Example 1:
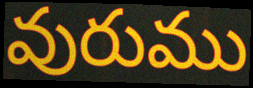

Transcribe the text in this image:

వురుము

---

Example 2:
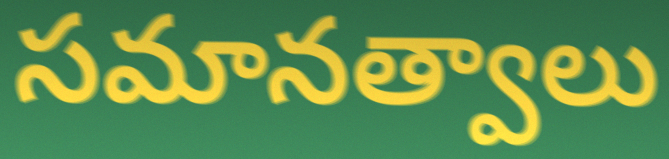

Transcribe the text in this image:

సమానత్వాలు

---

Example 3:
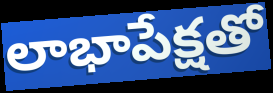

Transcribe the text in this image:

లాభాపేక్షతో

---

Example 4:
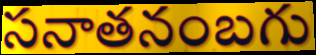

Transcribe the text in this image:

సనాతనంబగు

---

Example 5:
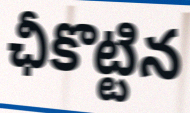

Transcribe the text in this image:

ఛీకొట్టిన